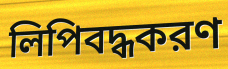
লিপিবদ্ধকরণ